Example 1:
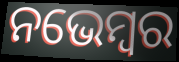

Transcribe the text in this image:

ନଭେମ୍ବର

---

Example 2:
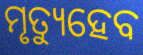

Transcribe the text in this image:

ମୃତ୍ୟୁହେବ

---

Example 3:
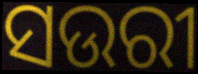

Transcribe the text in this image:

ସଉରୀ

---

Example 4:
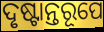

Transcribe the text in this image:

ଦୃଷ୍ଟାନ୍ତରୂପେ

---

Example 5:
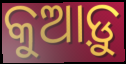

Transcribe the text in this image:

କୁଆଡ଼ୁ